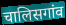
चालिसगांव